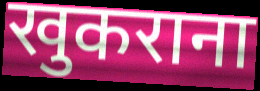
खुकराना